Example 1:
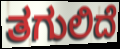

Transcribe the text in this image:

ತಗುಲಿದೆ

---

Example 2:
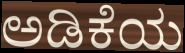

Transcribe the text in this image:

ಅಡಿಕೆಯ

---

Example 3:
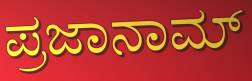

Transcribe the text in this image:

ಪ್ರಜಾನಾಮ್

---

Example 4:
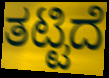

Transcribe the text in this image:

ತಟ್ಟಿದೆ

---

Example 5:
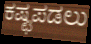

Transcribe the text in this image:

ಕಷ್ಟಪಡಲು